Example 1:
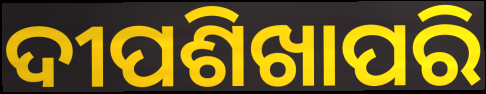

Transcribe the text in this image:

ଦୀପଶିଖାପରି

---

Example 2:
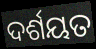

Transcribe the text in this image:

ଦର୍ଶୟତ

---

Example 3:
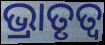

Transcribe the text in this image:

ଭ୍ରାତୃତ୍ଵ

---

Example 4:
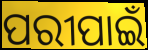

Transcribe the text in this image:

ପରୀପାଇଁ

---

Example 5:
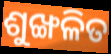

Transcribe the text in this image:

ଶୁଙ୍ଖଳିତ